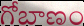
గోబాణం